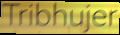
Tribhujer